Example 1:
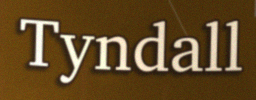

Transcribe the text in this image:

Tyndall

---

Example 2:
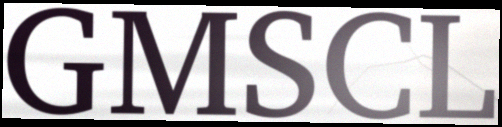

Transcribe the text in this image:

GMSCL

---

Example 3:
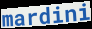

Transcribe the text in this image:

mardini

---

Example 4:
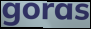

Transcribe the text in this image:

goras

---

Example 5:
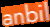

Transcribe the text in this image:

anbil